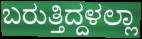
ಬರುತ್ತಿದ್ದಳಲ್ಲಾ